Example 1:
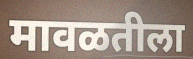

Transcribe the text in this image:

मावळतीला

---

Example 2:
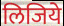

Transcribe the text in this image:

लिजिये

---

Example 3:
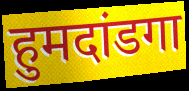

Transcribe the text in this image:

हुमदांडगा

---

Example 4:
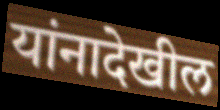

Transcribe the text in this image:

यांनादेखील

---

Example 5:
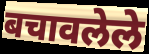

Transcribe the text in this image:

बचावलेले